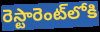
రెస్టారెంట్‌లోకి